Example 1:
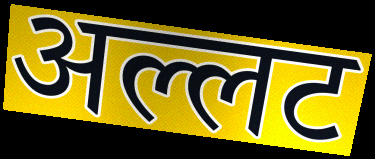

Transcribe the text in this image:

अल्लट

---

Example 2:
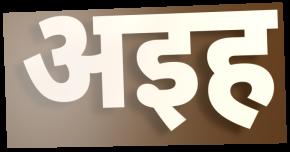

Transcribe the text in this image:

अइह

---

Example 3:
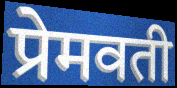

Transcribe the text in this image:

प्रेमवती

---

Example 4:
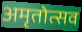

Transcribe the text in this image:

अमृतोत्सव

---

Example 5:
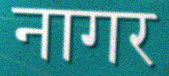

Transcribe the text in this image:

नागर